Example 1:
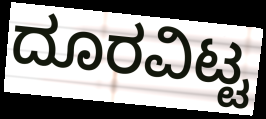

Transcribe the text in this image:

ದೂರವಿಟ್ಟ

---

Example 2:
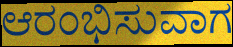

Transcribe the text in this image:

ಆರಂಭಿಸುವಾಗ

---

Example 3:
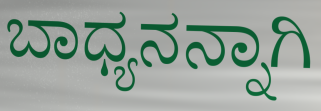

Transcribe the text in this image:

ಬಾಧ್ಯನನ್ನಾಗಿ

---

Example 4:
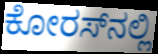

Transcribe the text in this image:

ಕೋರಸ್‌ನಲ್ಲಿ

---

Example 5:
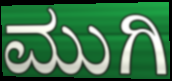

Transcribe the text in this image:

ಮುಗಿ